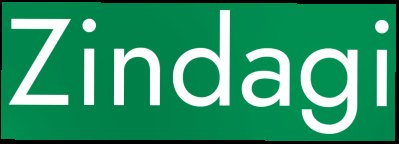
Zindagi